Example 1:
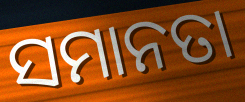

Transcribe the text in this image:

ସମାନତା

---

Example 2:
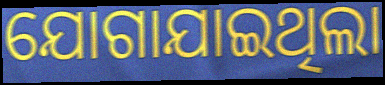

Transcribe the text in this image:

ଯୋଗାଯାଇଥିଲା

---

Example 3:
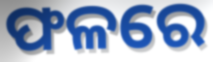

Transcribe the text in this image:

ଫଳରେ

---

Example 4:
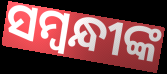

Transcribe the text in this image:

ସମ୍ବନ୍ଧୀଙ୍କ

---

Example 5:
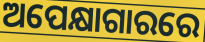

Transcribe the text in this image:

ଅପେକ୍ଷାଗାରରେ